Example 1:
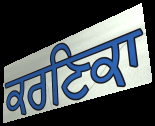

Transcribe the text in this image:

ਕਰਣਿਕਾ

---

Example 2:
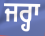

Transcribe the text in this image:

ਜਰ੍ਹਾ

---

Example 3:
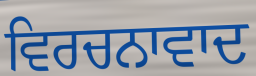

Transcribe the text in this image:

ਵਿਰਚਨਾਵਾਦ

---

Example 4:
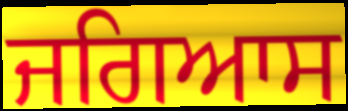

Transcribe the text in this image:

ਜਗਿਆਸ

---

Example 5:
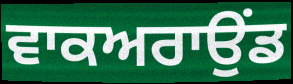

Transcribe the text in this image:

ਵਾਕਅਰਾਉਂਡ